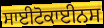
ਸਾਈਟੋਕਾਈਨਸ